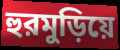
হুরমুড়িয়ে